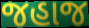
જહાજ